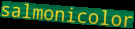
salmonicolor